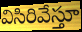
విసిరివేస్తూ